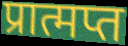
प्रात्मप्त